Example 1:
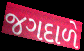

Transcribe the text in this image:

જગદાળે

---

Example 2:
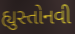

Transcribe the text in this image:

હ્યુસ્તોનવી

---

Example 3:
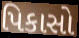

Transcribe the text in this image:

પિકાસો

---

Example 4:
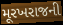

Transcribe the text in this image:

મૂરખરાજની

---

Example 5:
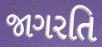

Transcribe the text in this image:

જાગરતિ